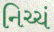
નિચ્ચં